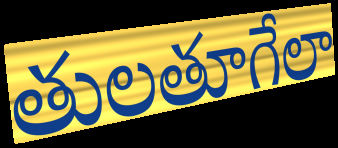
తులతూగేలా